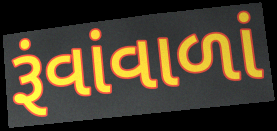
રૂંવાંવાળાં